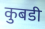
कुबडी